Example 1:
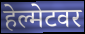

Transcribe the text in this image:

हेल्मेटवर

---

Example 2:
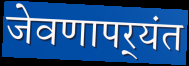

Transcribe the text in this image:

जेवणापर्यंत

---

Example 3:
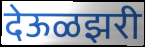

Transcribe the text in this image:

देऊळझरी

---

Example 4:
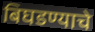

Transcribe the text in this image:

बिघडण्याचे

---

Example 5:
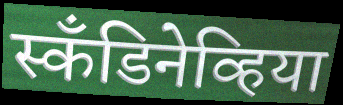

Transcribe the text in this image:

स्कँडिनेव्हिया